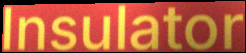
Insulator